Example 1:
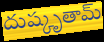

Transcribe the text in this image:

దుష్కృతామ్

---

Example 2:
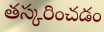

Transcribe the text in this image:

తస్కరించడం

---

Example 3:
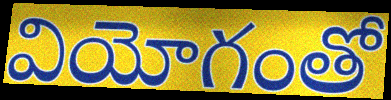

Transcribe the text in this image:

వియోగంతో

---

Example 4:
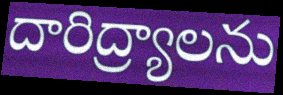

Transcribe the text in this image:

దారిద్ర్యాలను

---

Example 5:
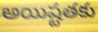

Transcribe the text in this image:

అయిష్టతకు